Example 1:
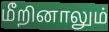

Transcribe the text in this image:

மீறினாலும்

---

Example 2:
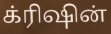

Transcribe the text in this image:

க்ரிஷின்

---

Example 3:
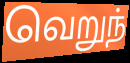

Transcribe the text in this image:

வெறுந்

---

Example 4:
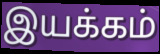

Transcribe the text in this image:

இயக்கம்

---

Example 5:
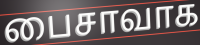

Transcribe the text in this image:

பைசாவாக